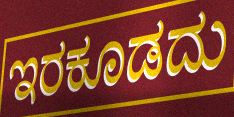
ಇರಕೂಡದು